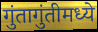
गुंतागुंतीमध्ये